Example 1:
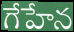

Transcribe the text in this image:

గేహేన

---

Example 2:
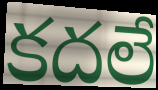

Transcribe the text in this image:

కదలే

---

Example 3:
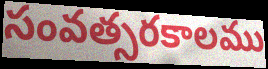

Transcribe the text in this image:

సంవత్సరకాలము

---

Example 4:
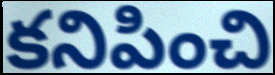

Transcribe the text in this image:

కనిపించి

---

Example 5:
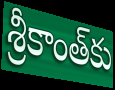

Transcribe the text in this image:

శ్రీకాంత్‌కు